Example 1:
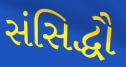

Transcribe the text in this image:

સંસિદ્ધૌ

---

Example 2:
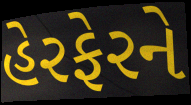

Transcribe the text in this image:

હેરફેરને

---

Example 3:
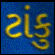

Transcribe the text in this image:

ટાંકુ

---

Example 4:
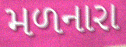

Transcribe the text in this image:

મળનારા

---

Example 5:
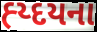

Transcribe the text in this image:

હ્ય્દયના